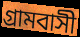
গ্রামবাসী